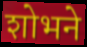
शोभने